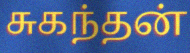
சுகந்தன்